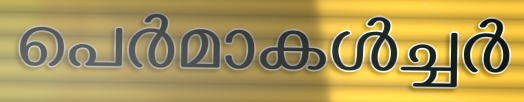
പെർമാകൾച്ചർ